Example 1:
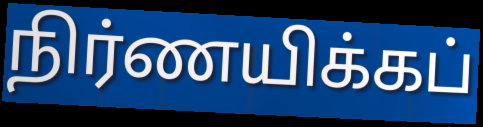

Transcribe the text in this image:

நிர்ணயிக்கப்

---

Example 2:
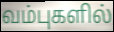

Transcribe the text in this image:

வம்புகளில்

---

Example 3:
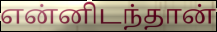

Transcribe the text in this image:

என்னிடந்தான்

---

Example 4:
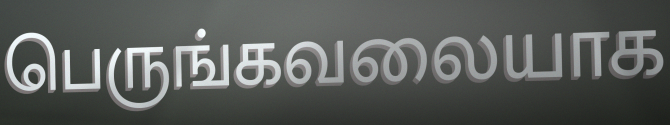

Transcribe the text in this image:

பெருங்கவலையாக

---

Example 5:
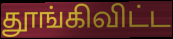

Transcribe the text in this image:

தூங்கிவிட்ட